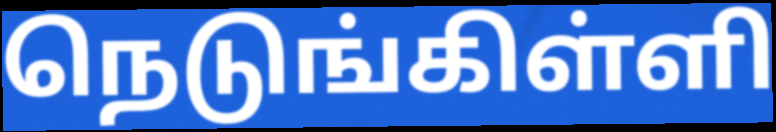
நெடுங்கிள்ளி